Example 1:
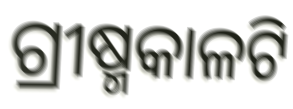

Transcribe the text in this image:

ଗ୍ରୀଷ୍ମକାଳଟି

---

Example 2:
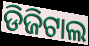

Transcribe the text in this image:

ଡିଜିଟାଲ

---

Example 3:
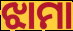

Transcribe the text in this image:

ଝାମା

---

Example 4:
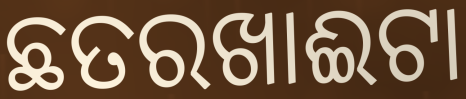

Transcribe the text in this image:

ଛତରଖାଈଟା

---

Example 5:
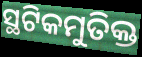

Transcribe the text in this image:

ସ୍ଥଟିକମୁତିକ୍ତ